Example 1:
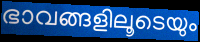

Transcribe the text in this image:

ഭാവങ്ങളിലൂടെയും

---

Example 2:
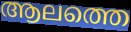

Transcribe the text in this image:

ആലത്തെ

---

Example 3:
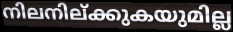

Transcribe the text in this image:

നിലനില്ക്കുകയുമില്ല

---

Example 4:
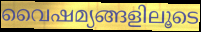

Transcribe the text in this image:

വൈഷമ്യങ്ങളിലൂടെ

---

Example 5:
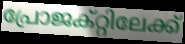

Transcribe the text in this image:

പ്രോജക്റ്റിലേക്ക്